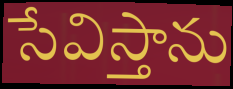
సేవిస్తాను